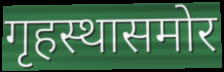
गृहस्थासमोर